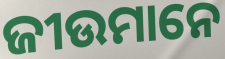
ଜୀଉମାନେ